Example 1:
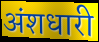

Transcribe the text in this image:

अंशधारी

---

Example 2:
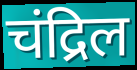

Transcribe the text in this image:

चंद्रिल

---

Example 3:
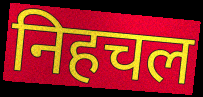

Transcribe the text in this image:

निहचल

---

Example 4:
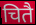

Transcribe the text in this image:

चितै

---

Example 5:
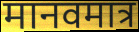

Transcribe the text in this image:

मानवमात्र